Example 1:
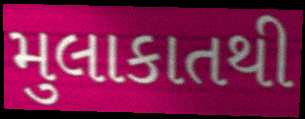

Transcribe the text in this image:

મુલાકાતથી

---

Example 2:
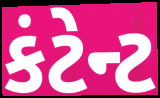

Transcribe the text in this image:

કંટેન્ટ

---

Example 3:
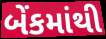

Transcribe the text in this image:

બેંકમાંથી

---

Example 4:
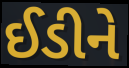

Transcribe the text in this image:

ઈડીને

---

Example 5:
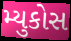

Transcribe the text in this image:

મ્યુકોસ